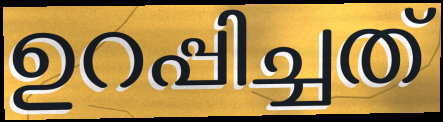
ഉറപ്പിച്ചത്